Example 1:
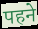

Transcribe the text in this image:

पहने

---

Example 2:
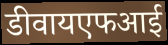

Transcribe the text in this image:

डीवायएफआई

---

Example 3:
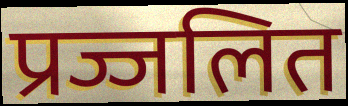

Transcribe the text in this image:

प्रज्जलित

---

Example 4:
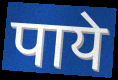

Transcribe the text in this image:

पाये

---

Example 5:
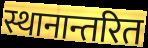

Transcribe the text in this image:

स्थानान्तरित